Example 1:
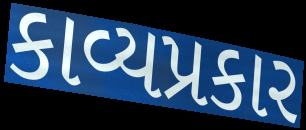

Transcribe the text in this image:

કાવ્યપ્રકાર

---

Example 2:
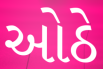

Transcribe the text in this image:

ઓઠે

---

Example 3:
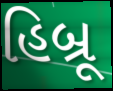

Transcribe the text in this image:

હિબ્રૂ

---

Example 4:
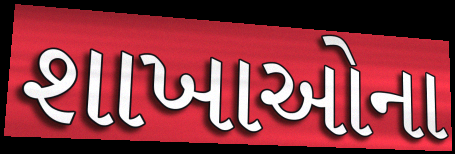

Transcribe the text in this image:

શાખાઓના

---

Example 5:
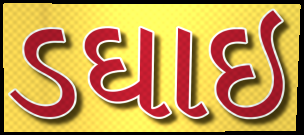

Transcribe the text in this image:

ડઘાઇ